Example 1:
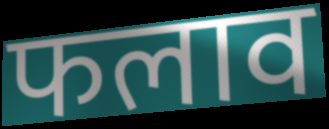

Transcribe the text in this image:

फलाव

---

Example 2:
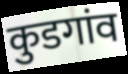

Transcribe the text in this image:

कुडगांव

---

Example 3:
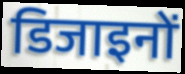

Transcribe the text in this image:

डिजाइनों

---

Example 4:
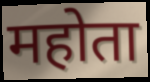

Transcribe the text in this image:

महोता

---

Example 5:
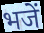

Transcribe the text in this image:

भजें